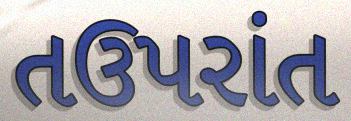
તઉપરાંત